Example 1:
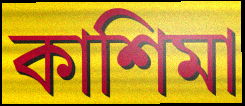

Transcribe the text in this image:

কাশিমা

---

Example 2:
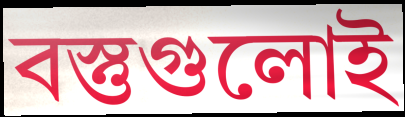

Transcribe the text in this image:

বস্তুগুলোই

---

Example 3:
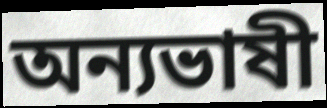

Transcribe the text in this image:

অন্যভাষী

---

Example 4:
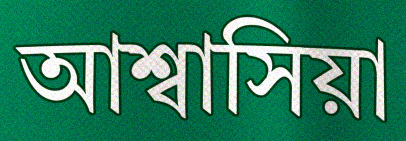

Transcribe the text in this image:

আশ্বাসিয়া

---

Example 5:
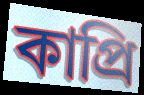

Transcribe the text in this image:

কাপ্রি